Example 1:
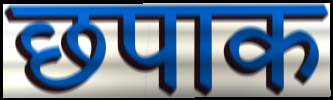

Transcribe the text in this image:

छपाक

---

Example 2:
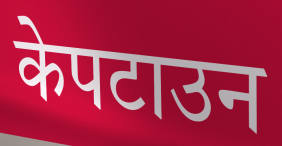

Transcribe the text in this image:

केपटाउन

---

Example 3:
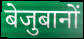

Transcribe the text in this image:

बेजुबानों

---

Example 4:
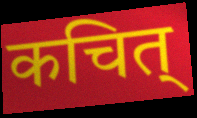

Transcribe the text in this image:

कचित्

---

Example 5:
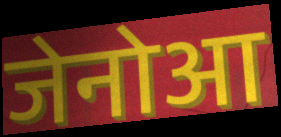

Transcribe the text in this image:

जेनोआ